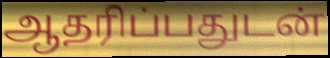
ஆதரிப்பதுடன்